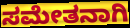
ಸಮೇತನಾಗಿ